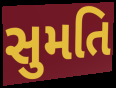
સુમતિ